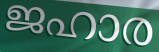
ജഹാര